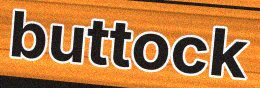
buttock